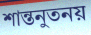
শান্তনুতনয়